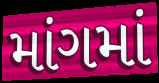
માંગમાં